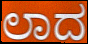
ಲಾದ